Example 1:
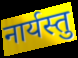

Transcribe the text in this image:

नार्यस्तु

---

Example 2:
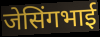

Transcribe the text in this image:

जेसिंगभाई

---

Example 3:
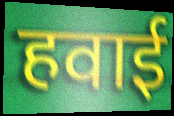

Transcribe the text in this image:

हवाई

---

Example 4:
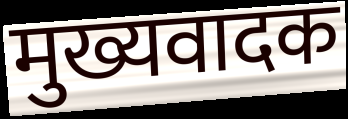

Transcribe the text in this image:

मुख्यवादक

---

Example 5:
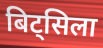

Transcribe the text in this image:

बिट्सिला